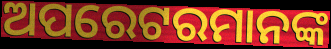
ଅପରେଟରମାନଙ୍କ